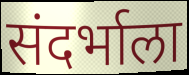
संदर्भाला